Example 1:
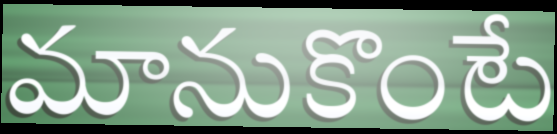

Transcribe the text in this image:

మానుకొంటే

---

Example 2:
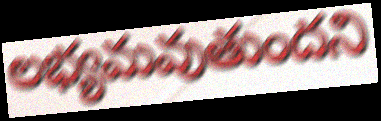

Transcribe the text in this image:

లభ్యమవుతుందని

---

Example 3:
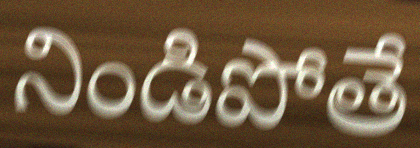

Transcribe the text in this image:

నిండిపోతే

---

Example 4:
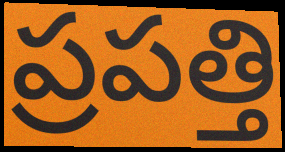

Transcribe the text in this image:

ప్రపత్తి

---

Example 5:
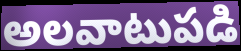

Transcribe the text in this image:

అలవాటుపడి